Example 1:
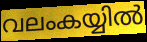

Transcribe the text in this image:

വലംകയ്യിൽ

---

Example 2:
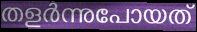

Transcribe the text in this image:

തളർന്നുപോയത്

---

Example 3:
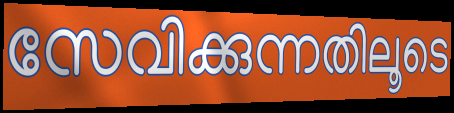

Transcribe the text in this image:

സേവിക്കുന്നതിലൂടെ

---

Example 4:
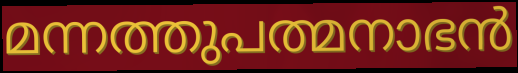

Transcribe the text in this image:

മന്നത്തുപത്മനാഭൻ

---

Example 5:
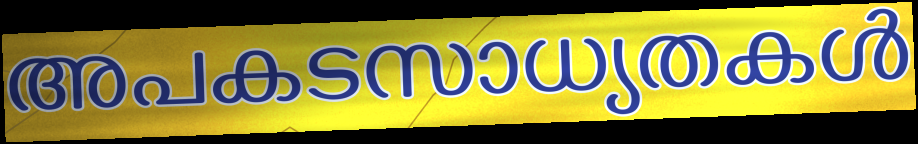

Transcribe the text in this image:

അപകടസാധ്യതകൾ